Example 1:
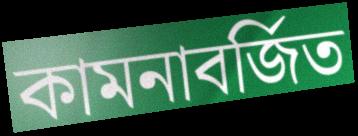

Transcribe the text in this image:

কামনাবর্জিত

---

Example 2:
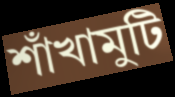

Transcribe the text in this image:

শাঁখামুটি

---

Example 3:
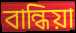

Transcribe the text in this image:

বান্ধিয়া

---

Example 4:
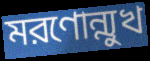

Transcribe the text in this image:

মরণোন্মুখ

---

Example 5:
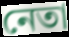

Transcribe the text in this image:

নেতা